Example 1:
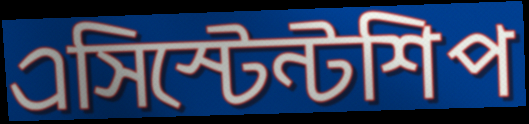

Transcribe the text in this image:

এসিস্টেন্টশিপ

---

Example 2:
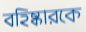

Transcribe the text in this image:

বহিষ্কারকে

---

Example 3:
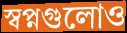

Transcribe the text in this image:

স্বপ্নগুলোও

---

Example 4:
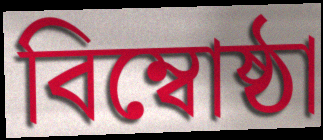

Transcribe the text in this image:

বিম্বোষ্ঠা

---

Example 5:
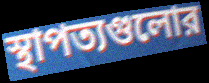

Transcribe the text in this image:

স্থাপত্যগুলোর